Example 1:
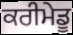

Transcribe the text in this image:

ਕਰੀਮੇਡੂ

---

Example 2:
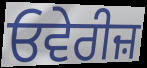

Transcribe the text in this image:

ਓਵੇਰੀਜ਼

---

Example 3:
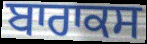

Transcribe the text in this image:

ਬਾਰਾਕਸ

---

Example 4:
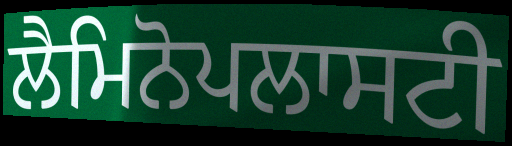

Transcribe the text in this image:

ਲੈਮਿਨੋਪਲਾਸਟੀ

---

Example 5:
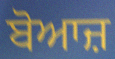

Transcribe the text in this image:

ਬੋਆਜ਼